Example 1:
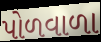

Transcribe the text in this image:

પોળવાળા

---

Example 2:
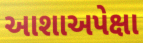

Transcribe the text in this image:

આશાઅપેક્ષા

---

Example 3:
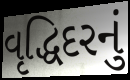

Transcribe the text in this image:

વૃદ્ધિદરનું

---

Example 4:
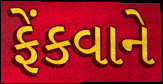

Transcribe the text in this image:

ફેંકવાને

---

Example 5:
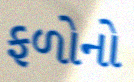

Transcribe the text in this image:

ફળોનો